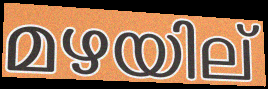
മഴയില്